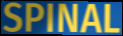
SPINAL